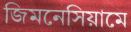
জিমনেসিয়ামে